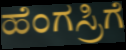
ಹೆಂಗಸ್ರಿಗೆ